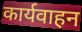
कार्यवाहन